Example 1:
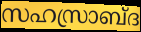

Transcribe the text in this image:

സഹസ്രാബ്ദ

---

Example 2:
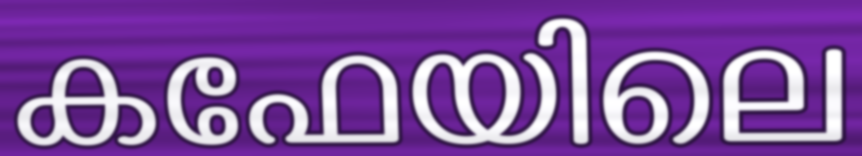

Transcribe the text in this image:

കഫേയിലെ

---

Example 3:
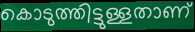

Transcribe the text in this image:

കൊടുത്തിട്ടുള്ളതാണ്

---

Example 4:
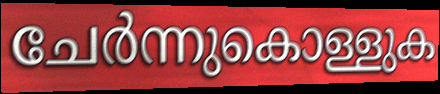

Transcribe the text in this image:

ചേർന്നുകൊള്ളുക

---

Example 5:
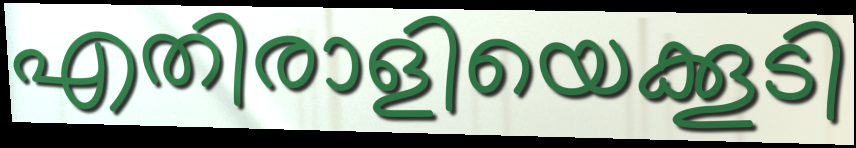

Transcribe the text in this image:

എതിരാളിയെക്കൂടി